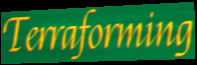
Terraforming